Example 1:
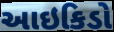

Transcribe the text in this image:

આઇકિડો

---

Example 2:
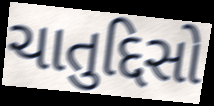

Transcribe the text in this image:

ચાતુદ્દિસો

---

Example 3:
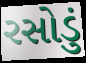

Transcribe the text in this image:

રસોડું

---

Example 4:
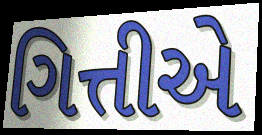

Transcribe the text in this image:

ગિત્તીએ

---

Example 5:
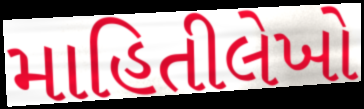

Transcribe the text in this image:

માહિતીલેખો